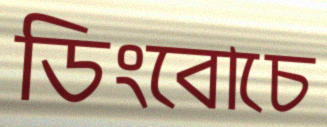
ডিংবোচে